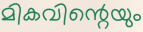
മികവിന്റെയും